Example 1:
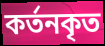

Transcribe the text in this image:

কর্তনকৃত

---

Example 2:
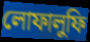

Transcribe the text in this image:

লোফালুফি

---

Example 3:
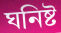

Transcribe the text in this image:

ঘনিষ্ট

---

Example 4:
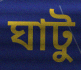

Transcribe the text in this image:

ঘাটু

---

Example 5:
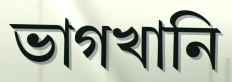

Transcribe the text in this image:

ভাগখানি